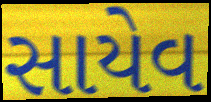
સાયેવ